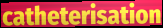
catheterisation